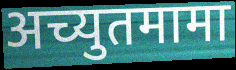
अच्युतमामा